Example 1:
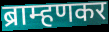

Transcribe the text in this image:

ब्राम्हणकर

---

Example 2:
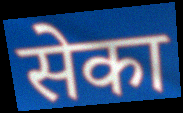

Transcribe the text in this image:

सेका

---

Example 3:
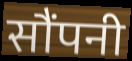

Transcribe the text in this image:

सौंपनी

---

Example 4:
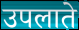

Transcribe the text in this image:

उपलाते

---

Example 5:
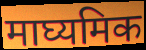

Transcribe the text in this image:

माघ्यमिक